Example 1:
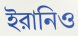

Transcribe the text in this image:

ইরানিও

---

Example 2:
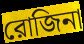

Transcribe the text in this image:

রোজিনা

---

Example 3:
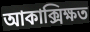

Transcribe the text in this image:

আকাক্সিক্ষত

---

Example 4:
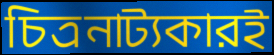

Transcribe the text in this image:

চিত্রনাট্যকারই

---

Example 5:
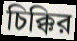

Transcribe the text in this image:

চিক্কির